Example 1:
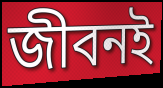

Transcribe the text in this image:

জীবনই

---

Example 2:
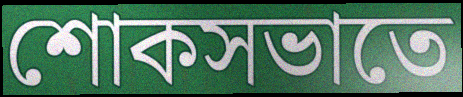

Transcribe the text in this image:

শোকসভাতে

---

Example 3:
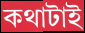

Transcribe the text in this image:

কথাটাই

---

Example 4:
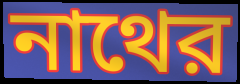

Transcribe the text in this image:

নাথের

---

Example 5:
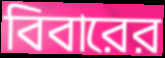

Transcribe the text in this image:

বিবারের